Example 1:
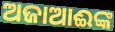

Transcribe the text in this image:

ଅଜାଆଈଙ୍କ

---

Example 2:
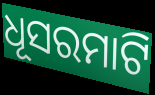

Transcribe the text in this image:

ଧୂସରମାଟି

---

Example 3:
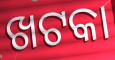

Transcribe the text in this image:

ଖଟକା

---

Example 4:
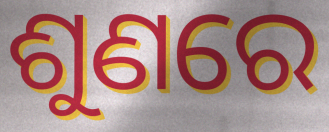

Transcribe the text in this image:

ଶୁଣରେ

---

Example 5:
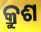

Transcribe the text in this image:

କ୍ରୁଶ